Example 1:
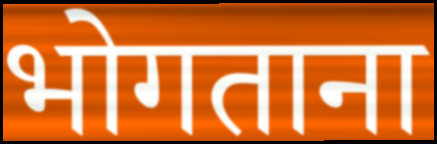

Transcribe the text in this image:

भोगताना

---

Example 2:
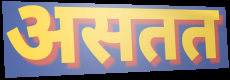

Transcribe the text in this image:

असतत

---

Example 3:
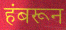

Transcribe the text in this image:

हंबरून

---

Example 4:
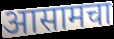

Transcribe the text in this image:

आसामचा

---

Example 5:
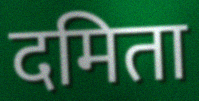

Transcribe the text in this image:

दमिता